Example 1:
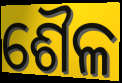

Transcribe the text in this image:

ଶୈଳ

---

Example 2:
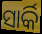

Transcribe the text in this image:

ସାର୍କି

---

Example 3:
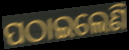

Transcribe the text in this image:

ପଠାଇଲେଣି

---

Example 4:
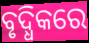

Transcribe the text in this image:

ବୃଦ୍ଧିକରେ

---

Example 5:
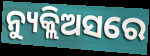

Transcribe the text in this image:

ନ୍ୟୁକ୍ଲିଅସରେ